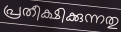
പ്രതീക്ഷിക്കുന്നതു